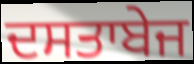
ਦਸਤਾਬੇਜ